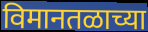
विमानतळाच्या